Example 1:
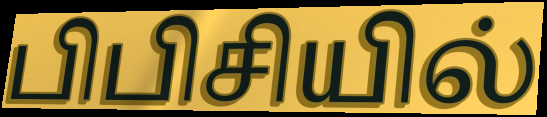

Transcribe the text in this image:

பிபிசியில்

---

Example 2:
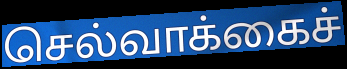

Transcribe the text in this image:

செல்வாக்கைச்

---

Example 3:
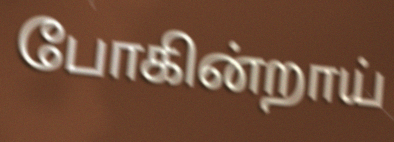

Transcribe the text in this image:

போகின்றாய்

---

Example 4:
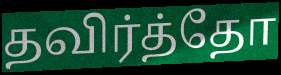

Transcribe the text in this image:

தவிர்த்தோ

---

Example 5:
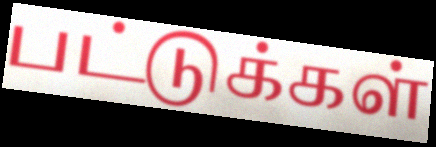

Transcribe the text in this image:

பட்டுக்கள்